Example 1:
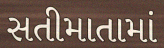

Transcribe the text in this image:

સતીમાતામાં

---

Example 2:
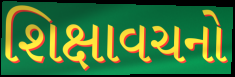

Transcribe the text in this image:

શિક્ષાવચનો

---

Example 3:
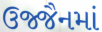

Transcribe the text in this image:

ઉજ્જૈનમાં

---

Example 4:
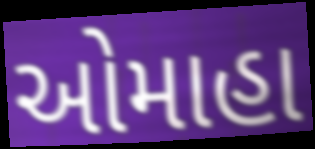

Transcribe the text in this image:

ઓમાહા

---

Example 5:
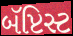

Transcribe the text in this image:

બૅપ્ટિસ્ટ